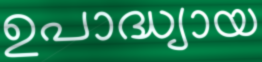
ഉപാദ്ധ്യായ